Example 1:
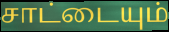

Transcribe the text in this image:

சாட்டையும்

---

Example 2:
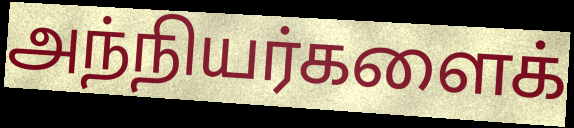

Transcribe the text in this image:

அந்நியர்களைக்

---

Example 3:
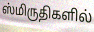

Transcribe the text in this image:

ஸ்மிருதிகளில்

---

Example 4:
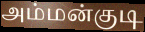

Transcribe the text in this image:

அம்மன்குடி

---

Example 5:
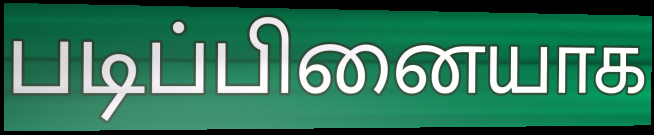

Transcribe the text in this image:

படிப்பினையாக